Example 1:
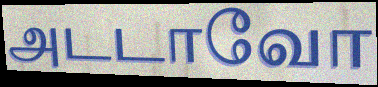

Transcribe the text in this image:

அடடாவோ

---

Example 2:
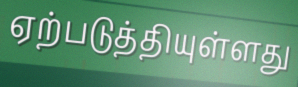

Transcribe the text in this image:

ஏற்படுத்தியுள்ளது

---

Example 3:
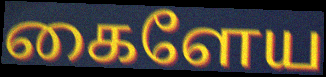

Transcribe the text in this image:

கைளேய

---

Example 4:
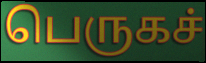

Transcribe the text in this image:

பெருகச்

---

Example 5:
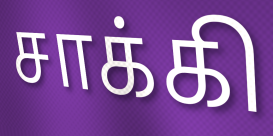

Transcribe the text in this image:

சாக்கி